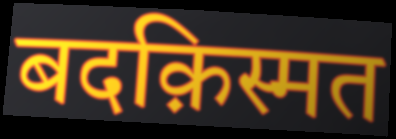
बदक़िस्मत